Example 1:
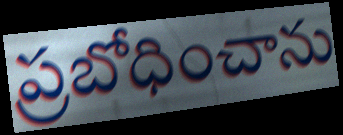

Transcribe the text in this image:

ప్రబోధించాను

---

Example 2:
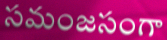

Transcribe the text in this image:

సమంజసంగా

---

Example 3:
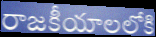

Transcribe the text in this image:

రాజకీయాలలోకి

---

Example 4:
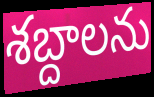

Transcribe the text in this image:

శబ్దాలను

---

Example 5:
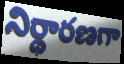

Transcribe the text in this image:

నిర్థారణగా